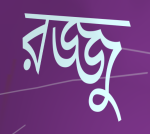
রজ্জু